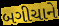
બગીચાને